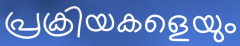
പ്രക്രിയകളെയും